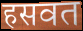
हसवत